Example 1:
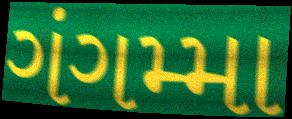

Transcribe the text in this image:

ગંગમ્મા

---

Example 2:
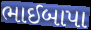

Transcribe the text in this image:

ભાઈબાપા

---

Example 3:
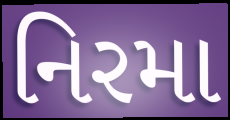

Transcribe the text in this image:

નિરમા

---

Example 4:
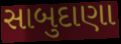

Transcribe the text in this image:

સાબુદાણા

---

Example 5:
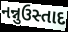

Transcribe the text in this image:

નન્નુઉસ્તાદ